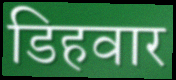
डिहवार